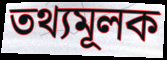
তথ্যমূলক